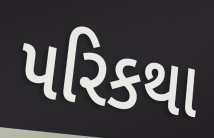
પરિકથા